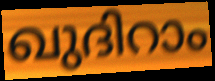
ഖുദിറാം